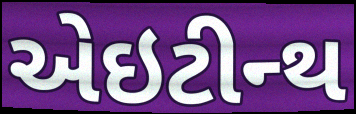
એઇટીન્થ